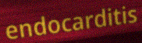
endocarditis